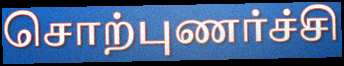
சொற்புணர்ச்சி